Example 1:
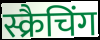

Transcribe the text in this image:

स्क्रैचिंग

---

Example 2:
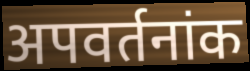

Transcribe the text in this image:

अपवर्तनांक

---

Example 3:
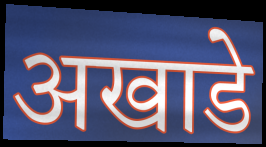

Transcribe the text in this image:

अखाडे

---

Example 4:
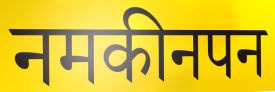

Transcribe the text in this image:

नमकीनपन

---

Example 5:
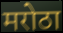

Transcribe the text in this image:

मरोठा